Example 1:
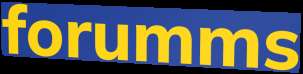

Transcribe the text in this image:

forumms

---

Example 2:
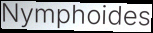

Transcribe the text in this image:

Nymphoides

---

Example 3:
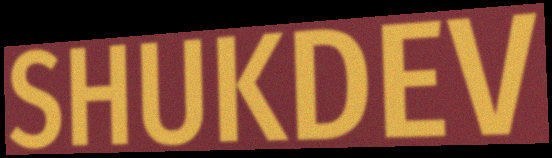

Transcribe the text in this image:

SHUKDEV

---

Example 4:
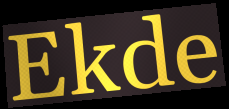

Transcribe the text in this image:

Ekde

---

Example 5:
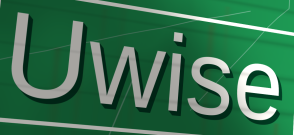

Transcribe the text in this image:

Uwise